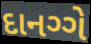
દાનગ્ગે